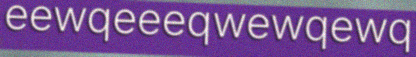
eewqeeeqwewqewq